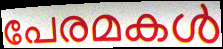
പേരമകൾ